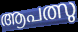
ആപത്സു